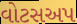
વોટસઅપ